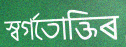
স্বৰ্গতোক্তিৰ